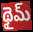
థైమ్